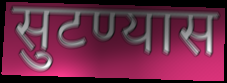
सुटण्यास